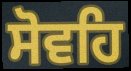
ਸੋਵਹਿ